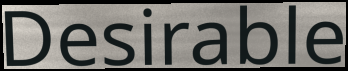
Desirable